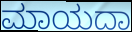
ಮಾಯದಾ